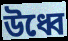
উধ্বে